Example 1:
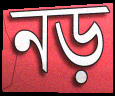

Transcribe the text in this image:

নড়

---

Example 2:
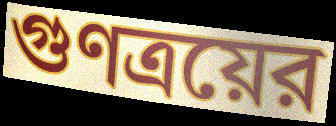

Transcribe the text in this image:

গুণত্রয়ের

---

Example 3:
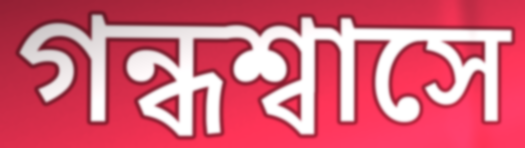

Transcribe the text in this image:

গন্ধশ্বাসে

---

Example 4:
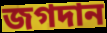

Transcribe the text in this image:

জগদান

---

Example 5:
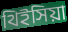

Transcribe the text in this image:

থিইসিয়া